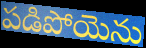
పడిపోయెను